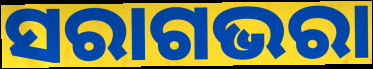
ସରାଗଭରା